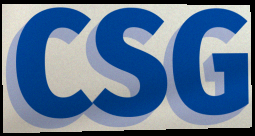
CSG